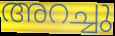
അറച്ചു